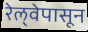
रेल्वेपासून